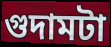
গুদামটা